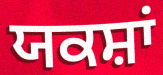
ਯਕਸ਼ਾਂ